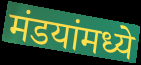
मंडयांमध्ये